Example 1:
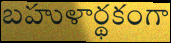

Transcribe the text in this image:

బహుళార్థకంగా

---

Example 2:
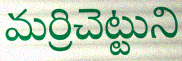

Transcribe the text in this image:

మర్రిచెట్టుని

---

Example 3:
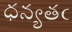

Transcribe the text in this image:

ధన్యతఁ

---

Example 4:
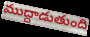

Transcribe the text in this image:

ముద్దాడుతుంది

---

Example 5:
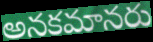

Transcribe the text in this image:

అనకమానరు